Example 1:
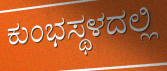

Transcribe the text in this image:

ಕುಂಭಸ್ಥಳದಲ್ಲಿ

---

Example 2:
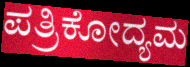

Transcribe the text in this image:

ಪತ್ರಿಕೋದ್ಯಮ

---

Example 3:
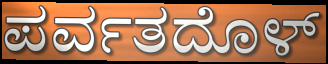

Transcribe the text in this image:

ಪರ್ವತದೊಳ್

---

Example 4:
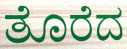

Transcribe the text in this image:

ತೊರೆದ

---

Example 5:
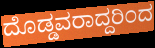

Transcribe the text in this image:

ದೊಡ್ಡವರಾದ್ದರಿಂದ